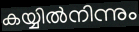
കയ്യിൽനിന്നും